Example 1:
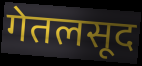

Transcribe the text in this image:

गेतलसूद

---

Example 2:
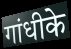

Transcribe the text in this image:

गांधीके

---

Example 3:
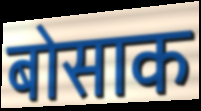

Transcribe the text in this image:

बोसाक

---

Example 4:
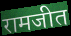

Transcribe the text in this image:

रामजीत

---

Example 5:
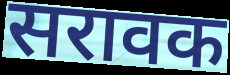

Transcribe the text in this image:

सरावक